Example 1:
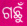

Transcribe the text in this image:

ଗଛୁଁ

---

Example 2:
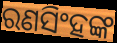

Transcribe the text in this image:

ରଣସିଂହଙ୍କ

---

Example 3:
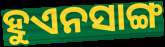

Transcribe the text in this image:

ହୁଏନସାଙ୍ଗ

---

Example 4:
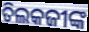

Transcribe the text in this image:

ତିଲକଜୀଙ୍କ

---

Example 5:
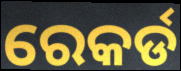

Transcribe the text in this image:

ରେକର୍ଡ